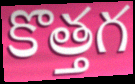
కొత్తగ